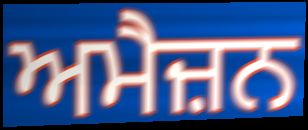
ਅਮੈਜ਼ਨ